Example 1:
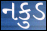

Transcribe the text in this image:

નકુડ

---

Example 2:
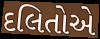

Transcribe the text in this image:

દલિતોએ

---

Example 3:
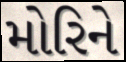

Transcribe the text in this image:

મોરિને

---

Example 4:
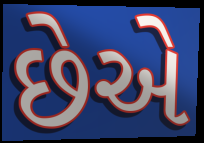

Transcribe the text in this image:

છેએ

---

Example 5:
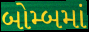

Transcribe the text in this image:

બોમ્બમાં